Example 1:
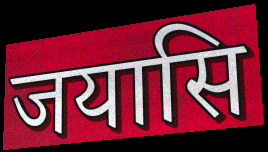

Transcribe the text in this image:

जयासि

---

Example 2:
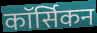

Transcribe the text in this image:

कॉर्सिकन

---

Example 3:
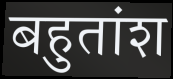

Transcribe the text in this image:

बहुतांश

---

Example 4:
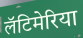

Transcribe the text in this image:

लॅटिमेरिया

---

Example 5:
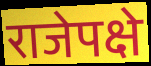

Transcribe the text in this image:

राजेपक्षे